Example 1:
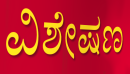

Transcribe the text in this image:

ವಿಶೇಷಣ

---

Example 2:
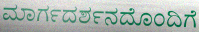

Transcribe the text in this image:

ಮಾರ್ಗದರ್ಶನದೊಂದಿಗೆ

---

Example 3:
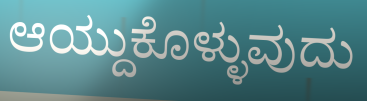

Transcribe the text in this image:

ಆಯ್ದುಕೊಳ್ಳುವುದು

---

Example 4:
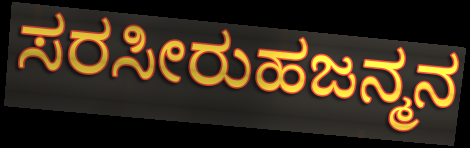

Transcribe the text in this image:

ಸರಸೀರುಹಜನ್ಮನ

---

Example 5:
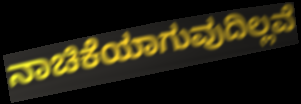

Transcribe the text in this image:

ನಾಚಿಕೆಯಾಗುವುದಿಲ್ಲವೆ